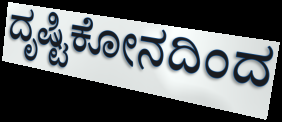
ದೃಷ್ಟಿಕೋನದಿಂದ